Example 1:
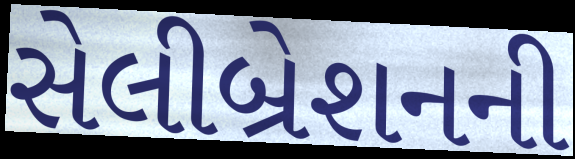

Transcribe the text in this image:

સેલીબ્રેશનની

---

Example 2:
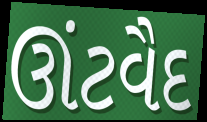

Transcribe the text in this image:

ઊંટવૈદ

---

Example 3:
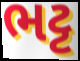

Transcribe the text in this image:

ભટ્ટ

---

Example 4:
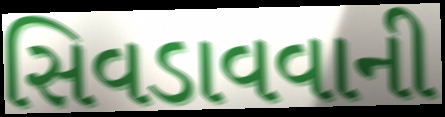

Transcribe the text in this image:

સિવડાવવાની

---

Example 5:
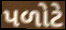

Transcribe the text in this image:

પળોટે